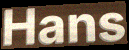
Hans